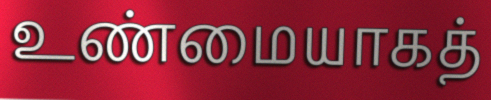
உண்மையாகத்